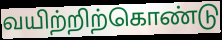
வயிற்றிற்கொண்டு